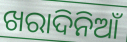
ଖରାଦିନିଆଁ